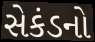
સેકંડનો